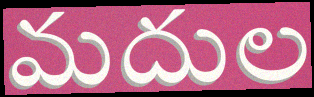
మదుల